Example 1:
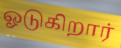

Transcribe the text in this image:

ஓடுகிறார்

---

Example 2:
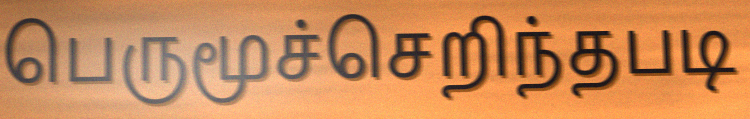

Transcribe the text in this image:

பெருமூச்செறிந்தபடி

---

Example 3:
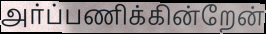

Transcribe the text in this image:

அர்ப்பணிக்கின்றேன்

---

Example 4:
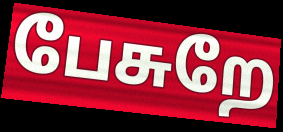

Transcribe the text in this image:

பேசுறே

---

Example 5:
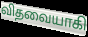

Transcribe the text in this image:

விதவையாகி